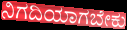
ನಿಗದಿಯಾಗಬೇಕು